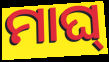
ମାଘ୍